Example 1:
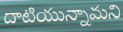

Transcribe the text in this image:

దాటియున్నామని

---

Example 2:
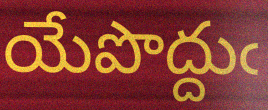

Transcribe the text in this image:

యేపొద్దుఁ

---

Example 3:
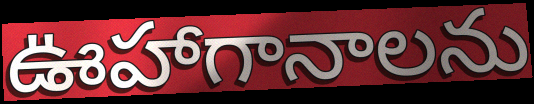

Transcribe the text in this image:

ఊహాగానాలను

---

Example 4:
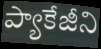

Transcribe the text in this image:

ప్యాకేజీని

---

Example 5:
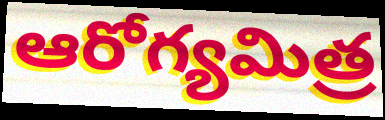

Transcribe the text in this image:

ఆరోగ్యమిత్ర